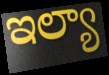
ఇల్యా